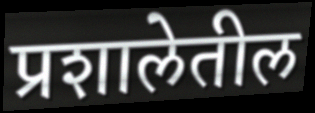
प्रशालेतील